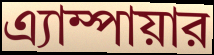
এ্যাম্পায়ার